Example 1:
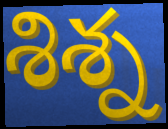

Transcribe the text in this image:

శిశ్న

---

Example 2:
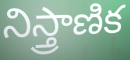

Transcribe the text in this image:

నిస్త్రాణిక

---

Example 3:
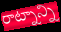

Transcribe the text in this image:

రాట్నాన్ని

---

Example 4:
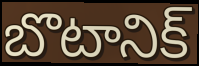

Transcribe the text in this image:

బొటానిక్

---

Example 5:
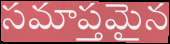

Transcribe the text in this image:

సమాప్తమైన